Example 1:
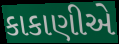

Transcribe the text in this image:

કાકાણીએ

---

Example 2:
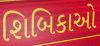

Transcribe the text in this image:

શિબિકાઓ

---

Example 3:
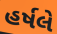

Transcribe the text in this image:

હર્ષલે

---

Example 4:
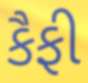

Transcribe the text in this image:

કૈફી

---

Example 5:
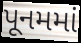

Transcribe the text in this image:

પૂનમમાં